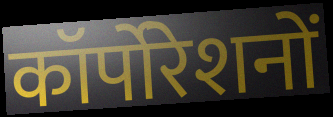
कॉर्पोरेशनों